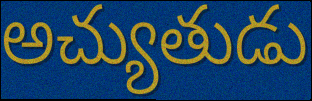
అచ్యుతుడు